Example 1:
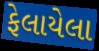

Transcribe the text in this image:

ફેલાયેલા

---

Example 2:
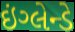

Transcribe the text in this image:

ઇંગ્લેન્ડે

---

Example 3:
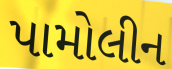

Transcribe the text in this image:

પામોલીન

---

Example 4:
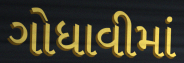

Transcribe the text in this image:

ગોધાવીમાં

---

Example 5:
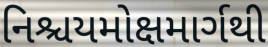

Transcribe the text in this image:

નિશ્ચયમોક્ષમાર્ગથી